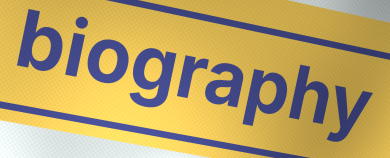
biography